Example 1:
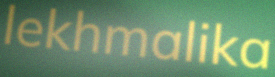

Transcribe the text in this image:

lekhmalika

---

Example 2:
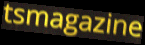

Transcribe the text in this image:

tsmagazine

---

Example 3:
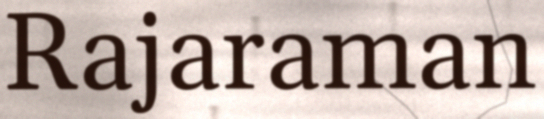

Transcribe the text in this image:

Rajaraman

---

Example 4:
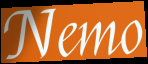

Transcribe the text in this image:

Nemo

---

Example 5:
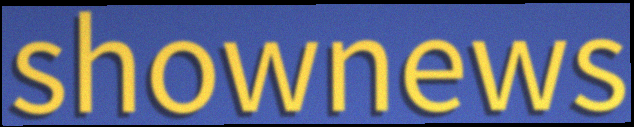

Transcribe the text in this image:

shownews